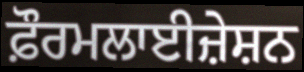
ਫ਼ੌਰਮਲਾਈਜ਼ੇਸ਼ਨ